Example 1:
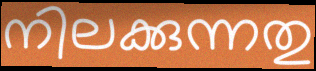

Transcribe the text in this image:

നിലക്കുന്നതു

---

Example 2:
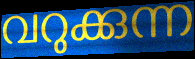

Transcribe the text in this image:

വറുക്കുന്ന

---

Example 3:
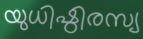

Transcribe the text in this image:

യുധിഷ്ഠിരസ്യ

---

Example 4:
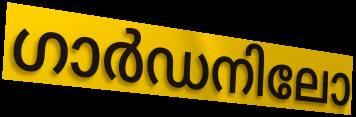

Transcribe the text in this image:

ഗാർഡനിലോ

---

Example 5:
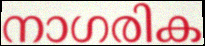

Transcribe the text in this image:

നാഗരിക